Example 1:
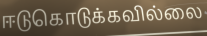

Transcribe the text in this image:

ஈடுகொடுக்கவில்லை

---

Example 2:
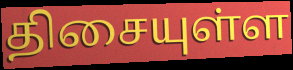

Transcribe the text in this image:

திசையுள்ள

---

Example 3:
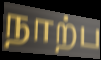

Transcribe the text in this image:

நாற்ப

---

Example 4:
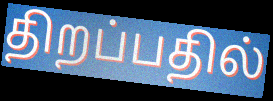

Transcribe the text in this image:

திறப்பதில்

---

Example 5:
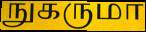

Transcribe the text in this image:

நுகருமா